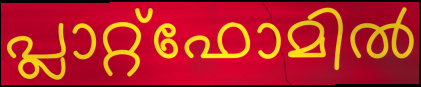
പ്ലാറ്റ്ഫോമിൽ